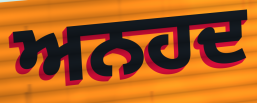
ਅਨਹਦ